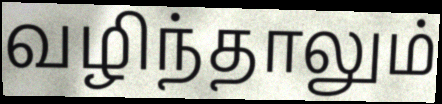
வழிந்தாலும்